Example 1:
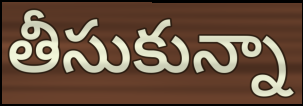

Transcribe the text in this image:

తీసుకున్నా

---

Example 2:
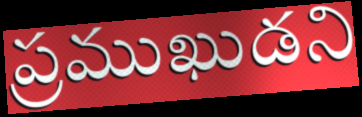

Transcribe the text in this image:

ప్రముఖుడని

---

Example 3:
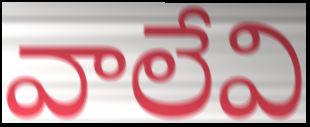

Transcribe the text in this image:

వాలేవి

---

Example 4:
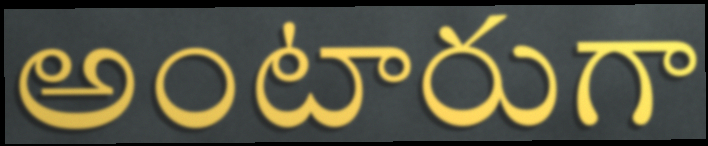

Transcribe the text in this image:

అంటారుగా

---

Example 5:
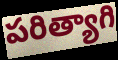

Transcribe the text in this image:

పరిత్యాగి